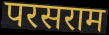
परसराम